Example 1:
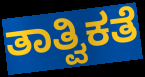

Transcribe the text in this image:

ತಾತ್ವಿಕತೆ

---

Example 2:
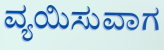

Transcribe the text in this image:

ವ್ಯಯಿಸುವಾಗ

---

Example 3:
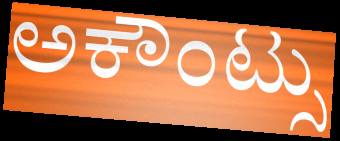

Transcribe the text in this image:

ಅಕೌಂಟ್ಸು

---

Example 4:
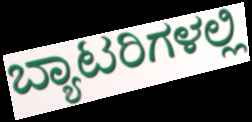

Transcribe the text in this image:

ಬ್ಯಾಟರಿಗಳಲ್ಲಿ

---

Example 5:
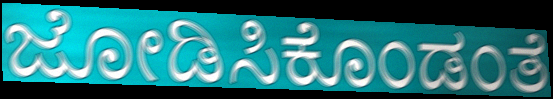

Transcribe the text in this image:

ಜೋಡಿಸಿಕೊಂಡಂತೆ